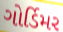
ગોર્ડિમર